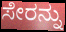
ಸೇರನ್ನು